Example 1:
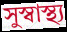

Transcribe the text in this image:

সুস্বাস্থ্য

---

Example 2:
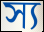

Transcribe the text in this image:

স্য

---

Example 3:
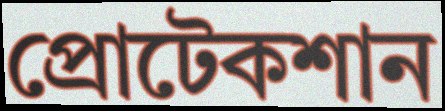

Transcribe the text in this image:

প্রোটেকশান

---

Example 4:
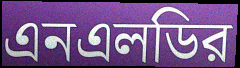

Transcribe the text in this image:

এনএলডির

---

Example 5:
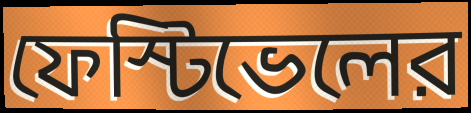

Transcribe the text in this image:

ফেস্টিভেলের